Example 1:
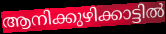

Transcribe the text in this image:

ആനിക്കുഴിക്കാട്ടിൽ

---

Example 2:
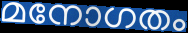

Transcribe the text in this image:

മനോഗതം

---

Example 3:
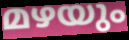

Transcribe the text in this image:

മഴയും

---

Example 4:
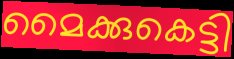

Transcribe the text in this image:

മൈക്കുകെട്ടി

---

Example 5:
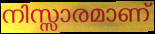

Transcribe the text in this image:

നിസ്സാരമാണ്